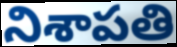
నిశాపతి